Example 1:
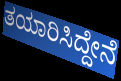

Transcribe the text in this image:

ತಯಾರಿಸಿದ್ದೇನೆ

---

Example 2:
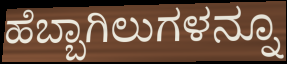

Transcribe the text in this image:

ಹೆಬ್ಬಾಗಿಲುಗಳನ್ನೂ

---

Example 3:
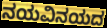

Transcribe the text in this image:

ನಯವಿನಯದ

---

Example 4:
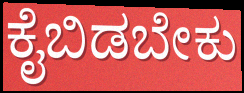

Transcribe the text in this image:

ಕೈಬಿಡಬೇಕು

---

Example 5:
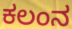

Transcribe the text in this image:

ಕಲಂನ